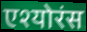
एश्योरंस